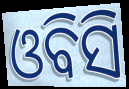
ଓବିସି